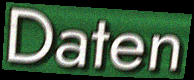
Daten